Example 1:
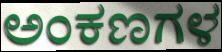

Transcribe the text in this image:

ಅಂಕಣಗಳ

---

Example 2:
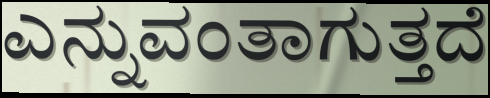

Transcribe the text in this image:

ಎನ್ನುವಂತಾಗುತ್ತದೆ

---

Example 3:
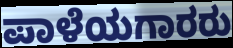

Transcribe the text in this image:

ಪಾಳೆಯಗಾರರು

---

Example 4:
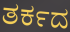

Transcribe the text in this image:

ತರ್ಕದ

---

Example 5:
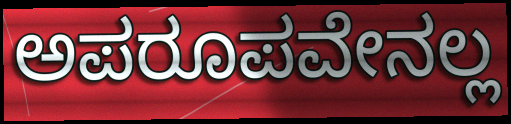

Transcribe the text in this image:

ಅಪರೂಪವೇನಲ್ಲ